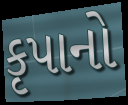
કૃપાનો